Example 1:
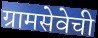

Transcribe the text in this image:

ग्रामसेवेची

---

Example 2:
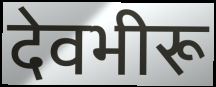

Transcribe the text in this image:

देवभीरू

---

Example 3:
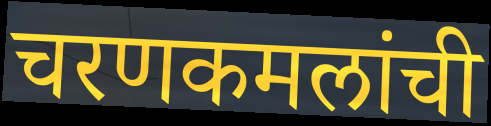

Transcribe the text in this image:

चरणकमलांची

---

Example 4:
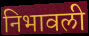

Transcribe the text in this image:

निभावली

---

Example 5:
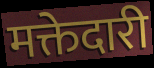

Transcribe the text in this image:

मक्तेदारी